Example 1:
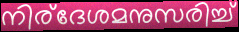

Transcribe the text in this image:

നിര്ദേശമനുസരിച്ച്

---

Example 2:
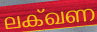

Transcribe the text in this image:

ലക്ഖണ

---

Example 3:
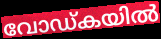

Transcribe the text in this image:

വോഡ്കയിൽ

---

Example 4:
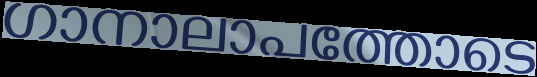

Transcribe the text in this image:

ഗാനാലാപത്തോടെ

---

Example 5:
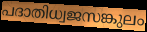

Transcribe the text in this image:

പദാതിധ്വജസങ്കുലം